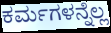
ಕರ್ಮಗಳನ್ನೆಲ್ಲ